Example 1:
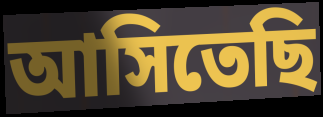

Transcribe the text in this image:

আসিতেছি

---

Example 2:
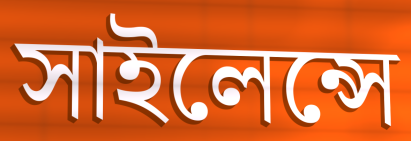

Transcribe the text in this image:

সাইলেন্সে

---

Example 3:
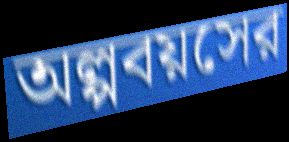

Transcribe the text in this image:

অল্পবয়সের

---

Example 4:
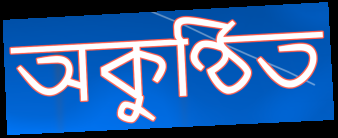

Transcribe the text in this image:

অকুণ্ঠিত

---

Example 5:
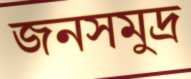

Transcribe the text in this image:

জনসমুদ্র